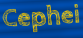
Cephei